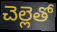
చెల్లెతో